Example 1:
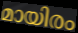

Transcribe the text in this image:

മായിരം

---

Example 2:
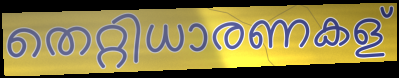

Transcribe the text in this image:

തെറ്റിധാരണകള്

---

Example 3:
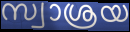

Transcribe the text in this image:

സ്വാശ്രയ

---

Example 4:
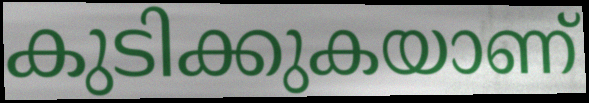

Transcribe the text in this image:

കുടിക്കുകയാണ്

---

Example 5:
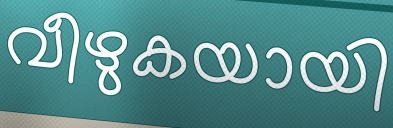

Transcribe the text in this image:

വീഴുകയായി